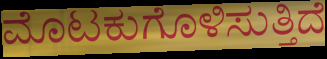
ಮೊಟಕುಗೊಳಿಸುತ್ತಿದೆ